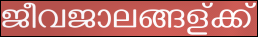
ജീവജാലങ്ങള്ക്ക്